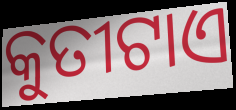
କୁତୀଟାଏ